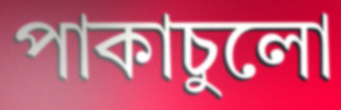
পাকাচুলো